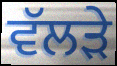
ਵੱਲੜੇ